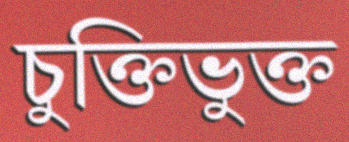
চুক্তিভুক্ত